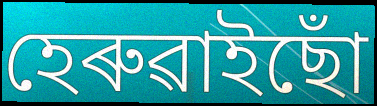
হেৰুৱাইছোঁ